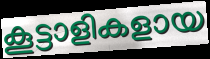
കൂട്ടാളികളായ